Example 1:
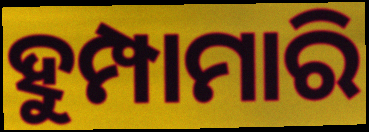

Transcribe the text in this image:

ହୁମ୍ପାମାରି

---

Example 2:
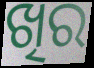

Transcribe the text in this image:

ଖିର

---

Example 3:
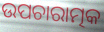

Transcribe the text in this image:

ଉପଚାରାତ୍ମକ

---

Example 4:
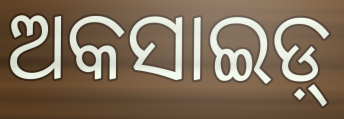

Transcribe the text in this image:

ଅକସାଇଡ଼୍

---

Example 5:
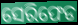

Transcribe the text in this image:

ସେରିଫେଡ